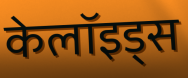
केलॉइड्स